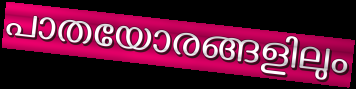
പാതയോരങ്ങളിലും